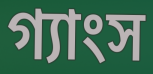
গ্যাংস